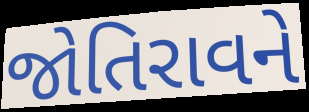
જોતિરાવને